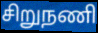
சிறுநணி